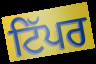
ਟਿੱਪਰ